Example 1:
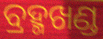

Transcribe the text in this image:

ବ୍ରହ୍ମଖଣ୍ଡ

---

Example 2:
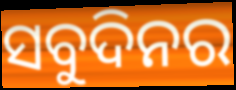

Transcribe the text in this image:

ସବୁଦିନର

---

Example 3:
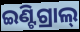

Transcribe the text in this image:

ଇଣ୍ଟିଗ୍ରାଲ୍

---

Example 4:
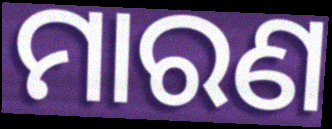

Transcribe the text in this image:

ମାରଣ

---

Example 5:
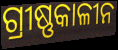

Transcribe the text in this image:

ଗ୍ରୀଷ୍ଣକାଳୀନ